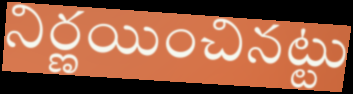
నిర్ణయించినట్టు